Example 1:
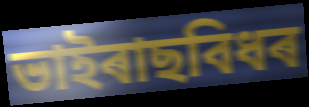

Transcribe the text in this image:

ভাইৰাছবিধৰ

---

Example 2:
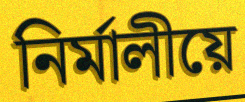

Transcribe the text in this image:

নিৰ্মালীয়ে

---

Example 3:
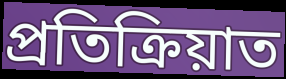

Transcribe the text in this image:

প্ৰতিক্ৰিয়াত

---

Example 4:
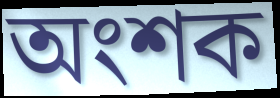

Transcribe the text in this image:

অংশক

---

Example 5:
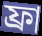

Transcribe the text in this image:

ফ্ৰা